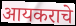
आयकराचे